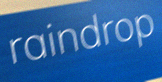
raindrop